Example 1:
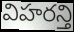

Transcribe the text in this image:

విహరన్తి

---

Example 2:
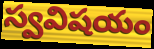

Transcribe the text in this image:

స్వవిషయం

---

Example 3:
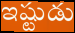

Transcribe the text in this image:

ఇష్టుడు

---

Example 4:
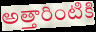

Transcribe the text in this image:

అత్తారింటికి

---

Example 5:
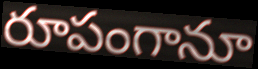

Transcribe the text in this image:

రూపంగానూ